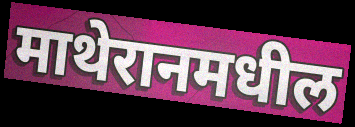
माथेरानमधील